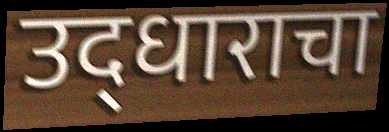
उद्धाराचा